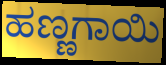
ಹಣ್ಣಗಾಯಿ